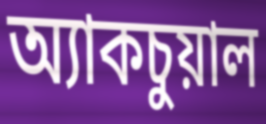
অ্যাকচুয়াল